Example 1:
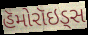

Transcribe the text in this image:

હૅમોરૉઇડ્સ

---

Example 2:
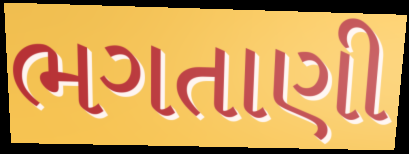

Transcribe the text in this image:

ભગતાણી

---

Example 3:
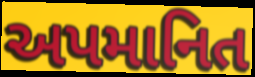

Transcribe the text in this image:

અપમાનિત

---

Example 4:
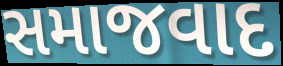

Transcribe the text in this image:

સમાજવાદ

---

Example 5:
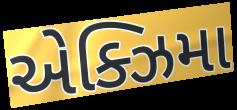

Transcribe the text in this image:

એક્ઝિમા